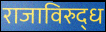
राजाविरुद्ध